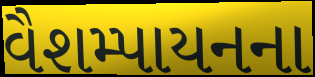
વૈશમ્પાયનના